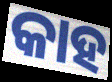
କାହ